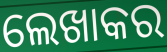
ଲେଖାକର